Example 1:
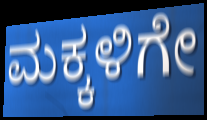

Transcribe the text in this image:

ಮಕ್ಕಳಿಗೇ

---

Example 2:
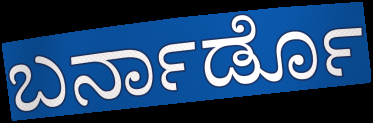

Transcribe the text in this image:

ಬರ್ನಾರ್ಡೊ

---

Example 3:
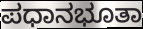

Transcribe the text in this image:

ಪಧಾನಭೂತಾ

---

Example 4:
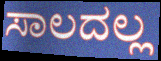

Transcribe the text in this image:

ಸಾಲದಲ್ಲ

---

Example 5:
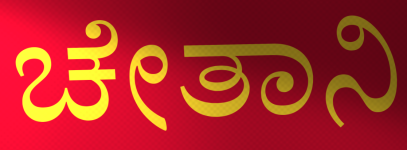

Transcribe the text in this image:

ಚೇತಾನಿ